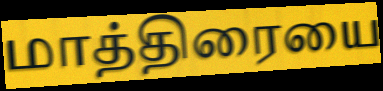
மாத்திரையை